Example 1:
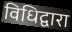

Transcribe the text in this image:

विधिद्वारा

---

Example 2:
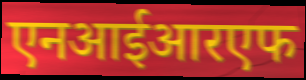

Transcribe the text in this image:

एनआईआरएफ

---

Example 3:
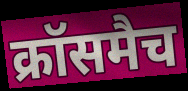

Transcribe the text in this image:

क्रॉसमैच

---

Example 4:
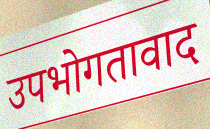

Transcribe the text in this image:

उपभोगतावाद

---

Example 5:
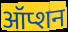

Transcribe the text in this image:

ऑप्शन